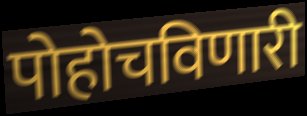
पोहोचविणारी